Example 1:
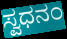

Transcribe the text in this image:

ಸ್ವಧನಂ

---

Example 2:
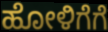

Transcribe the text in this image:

ಹೋಳಿಗೆಗೆ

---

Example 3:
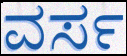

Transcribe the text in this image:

ವರ್ಸ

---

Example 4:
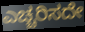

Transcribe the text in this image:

ಎಚ್ಚರಿಸದೇ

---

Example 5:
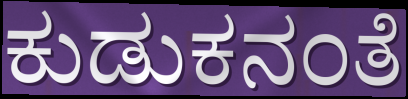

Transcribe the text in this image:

ಕುಡುಕನಂತೆ